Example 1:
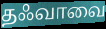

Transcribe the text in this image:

தஃவாவை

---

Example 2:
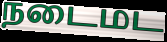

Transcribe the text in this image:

நடைமட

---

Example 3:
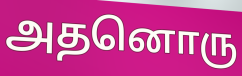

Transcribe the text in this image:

அதனொரு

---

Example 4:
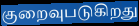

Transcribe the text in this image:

குறைவுபடுகிறது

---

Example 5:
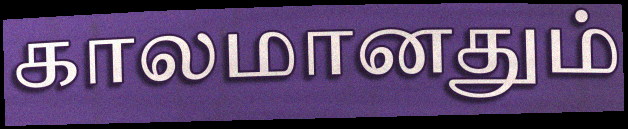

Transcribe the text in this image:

காலமானதும்